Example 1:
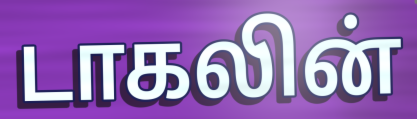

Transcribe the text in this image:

டாகலின்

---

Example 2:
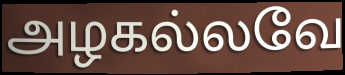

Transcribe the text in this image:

அழகல்லவே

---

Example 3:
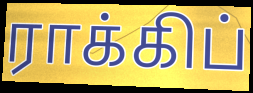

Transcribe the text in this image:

ராக்கிப்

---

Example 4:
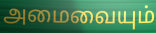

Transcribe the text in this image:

அமைவையும்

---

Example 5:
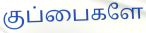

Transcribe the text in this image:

குப்பைகளே